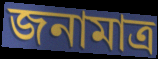
জনামাত্র